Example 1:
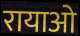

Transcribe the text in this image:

रायाओ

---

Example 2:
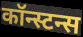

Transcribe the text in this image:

कॉन्स्टन्स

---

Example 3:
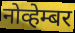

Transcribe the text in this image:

नोव्हेम्बर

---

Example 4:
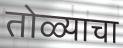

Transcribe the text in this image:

तोळ्याचा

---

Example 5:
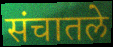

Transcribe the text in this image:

संचातले